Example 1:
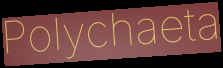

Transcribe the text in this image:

Polychaeta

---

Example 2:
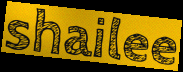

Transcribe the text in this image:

shailee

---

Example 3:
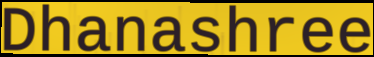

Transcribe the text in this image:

Dhanashree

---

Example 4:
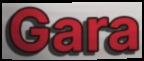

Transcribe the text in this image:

Gara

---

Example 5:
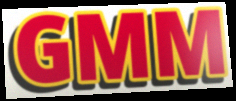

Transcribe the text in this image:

GMM